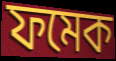
ফমেক